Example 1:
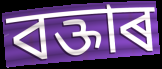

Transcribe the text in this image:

বক্তাৰ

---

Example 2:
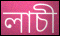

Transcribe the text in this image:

লাচী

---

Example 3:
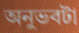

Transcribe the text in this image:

অনুভবটা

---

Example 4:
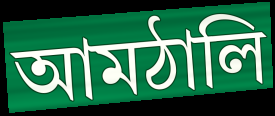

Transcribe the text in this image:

আমঠালি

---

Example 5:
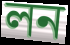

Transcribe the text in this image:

লন